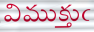
విముక్తుఁ